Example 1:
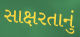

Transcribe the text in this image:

સાક્ષરતાનું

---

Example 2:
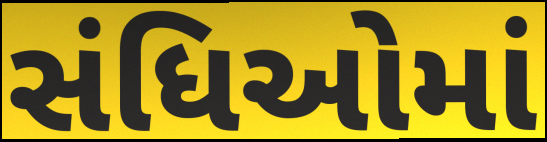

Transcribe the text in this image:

સંધિઓમાં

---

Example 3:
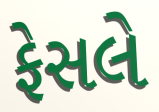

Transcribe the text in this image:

ફેસલે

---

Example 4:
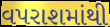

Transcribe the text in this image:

વપરાશમાંથી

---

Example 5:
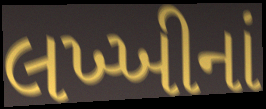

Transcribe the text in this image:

લખ્ખીનાં